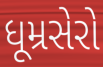
ધૂમ્રસેરો